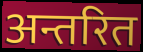
अन्तरित